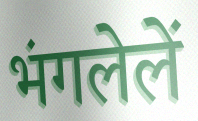
भंगलेलें